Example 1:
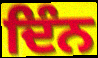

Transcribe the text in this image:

ਦਿੰਨ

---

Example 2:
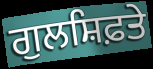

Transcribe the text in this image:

ਗੁਲਸ਼ਿਫ਼ਤੇ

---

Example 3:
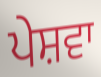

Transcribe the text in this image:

ਪੇਸ਼ਵਾ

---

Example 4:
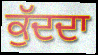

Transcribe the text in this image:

ਕੁੱਦਦਾ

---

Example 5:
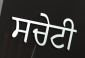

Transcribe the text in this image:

ਸਚੇਟੀ